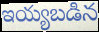
ఇయ్యబడిన